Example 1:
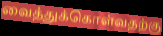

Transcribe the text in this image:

வைத்துக்கொள்வதற்கு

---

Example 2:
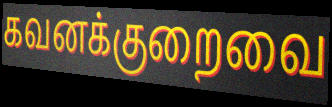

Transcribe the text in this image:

கவனக்குறைவை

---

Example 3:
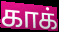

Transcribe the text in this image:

காக்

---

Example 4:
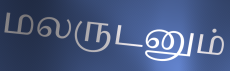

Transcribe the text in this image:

மலருடனும்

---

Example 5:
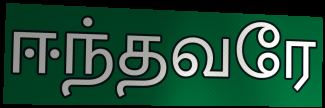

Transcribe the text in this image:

ஈந்தவரே